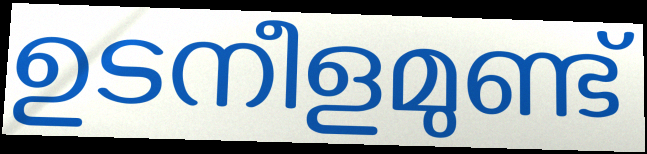
ഉടനീളമുണ്ട്